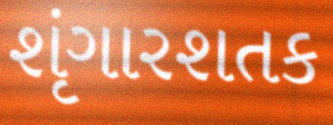
શૃંગારશતક